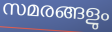
സമരങ്ങളും